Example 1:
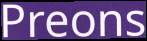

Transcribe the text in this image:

Preons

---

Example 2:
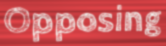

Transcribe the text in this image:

Opposing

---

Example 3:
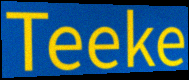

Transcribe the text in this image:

Teeke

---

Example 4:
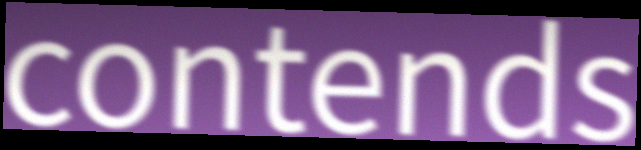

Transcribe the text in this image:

contends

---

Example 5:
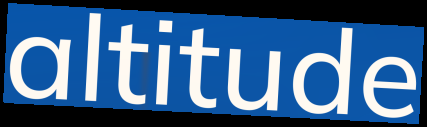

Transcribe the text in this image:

altitude